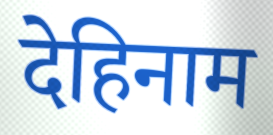
देहिनाम